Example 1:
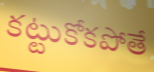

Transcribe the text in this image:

కట్టుకోకపోతే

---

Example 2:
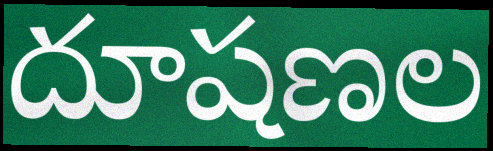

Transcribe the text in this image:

దూషణల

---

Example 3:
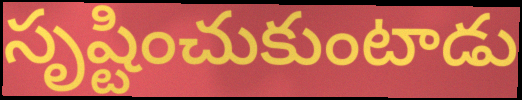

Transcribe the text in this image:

సృష్టించుకుంటాడు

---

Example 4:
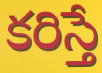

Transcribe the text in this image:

కరిస్తే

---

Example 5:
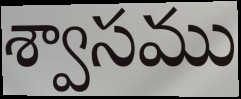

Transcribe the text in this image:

శ్వాసము